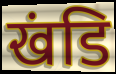
खंडि